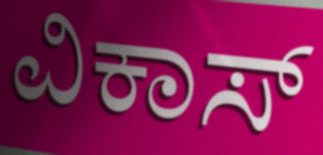
ವಿಕಾಸ್